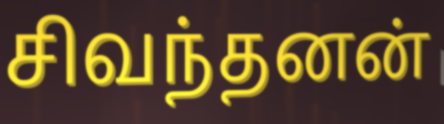
சிவந்தனன்